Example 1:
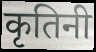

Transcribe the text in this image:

कृतिनी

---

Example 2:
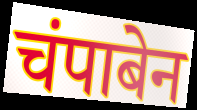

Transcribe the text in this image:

चंपाबेन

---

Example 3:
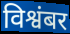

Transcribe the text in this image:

विश्वंबर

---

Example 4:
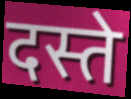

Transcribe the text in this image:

दस्ते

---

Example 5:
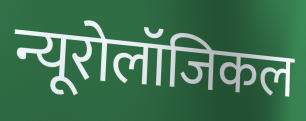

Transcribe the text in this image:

न्यूरोलॉजिकल